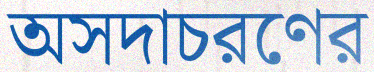
অসদাচরণের